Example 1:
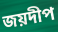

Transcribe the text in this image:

জয়দীপ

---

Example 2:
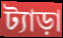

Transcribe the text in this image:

ট্যাড়া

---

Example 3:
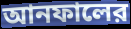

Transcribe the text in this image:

আনফালের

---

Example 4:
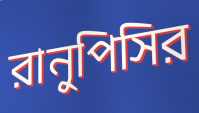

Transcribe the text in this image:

রানুপিসির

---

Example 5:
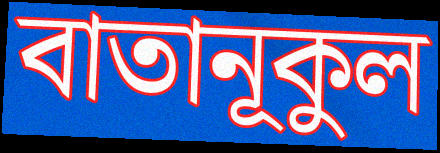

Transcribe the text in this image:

বাতানূকুল